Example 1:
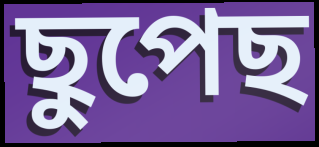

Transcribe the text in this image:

ছুপেছ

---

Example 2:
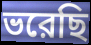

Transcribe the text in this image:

ভরেছি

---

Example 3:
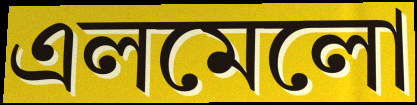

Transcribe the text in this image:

এলমেলো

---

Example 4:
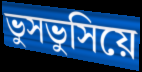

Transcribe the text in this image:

ভুসভুসিয়ে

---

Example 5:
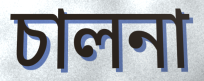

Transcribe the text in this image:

চালনা